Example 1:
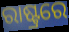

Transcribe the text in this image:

ରାଷ୍ଟ୍ରରେ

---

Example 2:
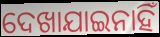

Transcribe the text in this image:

ଦେଖାଯାଇନାହିଁ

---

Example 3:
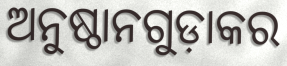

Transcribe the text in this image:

ଅନୁଷ୍ଠାନଗୁଡ଼ାକର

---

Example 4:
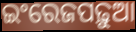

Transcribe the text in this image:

ଇଂରେଜପଢ଼ୁଆ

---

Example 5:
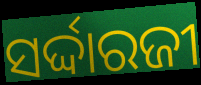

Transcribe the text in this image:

ସର୍ଦ୍ଦାରଜୀ